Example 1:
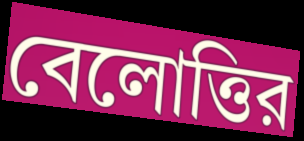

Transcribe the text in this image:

বেলোত্তির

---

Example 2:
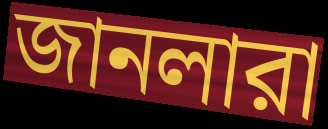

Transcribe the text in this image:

জানলারা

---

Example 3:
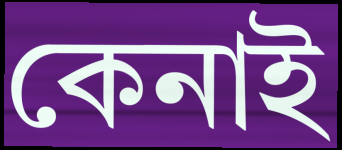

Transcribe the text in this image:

কেনাই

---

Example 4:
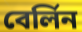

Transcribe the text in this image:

বের্লিন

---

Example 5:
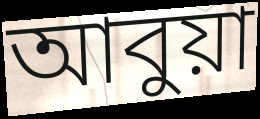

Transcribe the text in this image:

আবুয়া